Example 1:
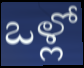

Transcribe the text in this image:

ఒళ్లో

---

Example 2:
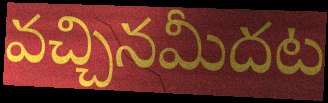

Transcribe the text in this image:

వచ్చినమీదట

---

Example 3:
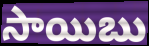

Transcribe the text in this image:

సాయిబు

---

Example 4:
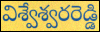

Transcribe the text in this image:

విశ్వేశ్వరరెడ్డి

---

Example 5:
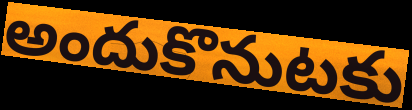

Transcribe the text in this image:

అందుకొనుటకు